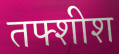
तफ्शीश